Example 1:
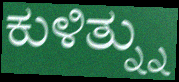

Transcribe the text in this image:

ಕುಳಿತ್ನ್ನು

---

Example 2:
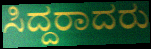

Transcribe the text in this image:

ಸಿದ್ದರಾದರು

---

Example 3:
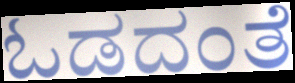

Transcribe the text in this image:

ಓಡದಂತೆ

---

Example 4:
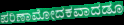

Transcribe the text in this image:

ಪರಿಣಾಮೋದಕವಾದಡೂ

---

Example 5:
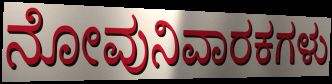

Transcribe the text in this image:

ನೋವುನಿವಾರಕಗಳು